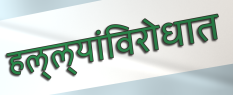
हल्ल्यांविरोधात